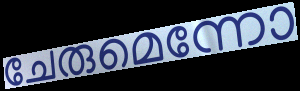
ചേരുമെന്നോ